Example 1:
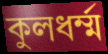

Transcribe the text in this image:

কুলধর্ম্ম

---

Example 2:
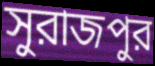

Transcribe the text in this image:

সুরাজপুর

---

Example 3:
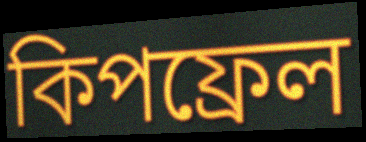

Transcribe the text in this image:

কিপফ্রেল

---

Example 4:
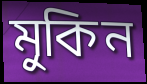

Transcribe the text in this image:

মুকিন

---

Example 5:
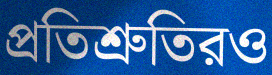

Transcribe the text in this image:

প্রতিশ্রুতিরও